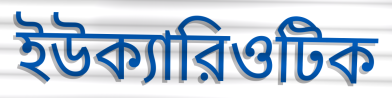
ইউক্যারিওটিক